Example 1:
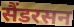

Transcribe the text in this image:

सैंडरसन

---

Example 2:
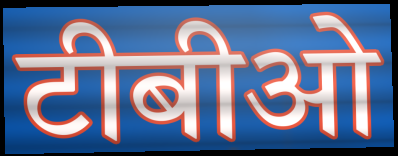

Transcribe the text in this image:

टीबीओ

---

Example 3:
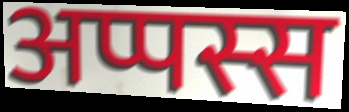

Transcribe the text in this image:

अप्पस्स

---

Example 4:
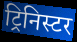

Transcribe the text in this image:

ट्रिनिस्टर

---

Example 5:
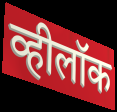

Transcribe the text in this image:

व्हीलॉक